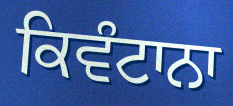
ਕਿਵੰਟਾਨਾ